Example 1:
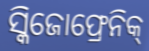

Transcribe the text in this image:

ସ୍କିଜୋଫ୍ରେନିକ୍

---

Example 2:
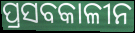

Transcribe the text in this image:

ପ୍ରସବକାଳୀନ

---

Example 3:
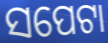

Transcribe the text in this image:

ସପେଟା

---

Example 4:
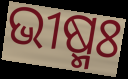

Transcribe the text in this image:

ଭୀଷ୍ମଃ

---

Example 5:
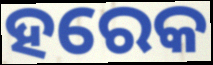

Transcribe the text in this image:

ହରେକ